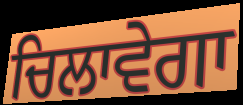
ਚਿਲਾਵੇਗਾ